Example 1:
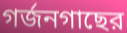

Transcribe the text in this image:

গর্জনগাছের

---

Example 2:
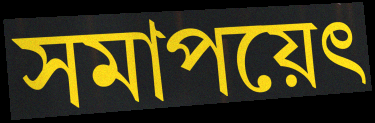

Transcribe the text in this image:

সমাপয়েৎ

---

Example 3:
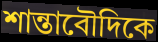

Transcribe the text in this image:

শান্তাবৌদিকে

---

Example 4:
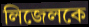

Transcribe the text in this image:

লিজেলকে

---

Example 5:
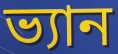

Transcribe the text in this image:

ভ্যান